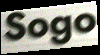
Sogo